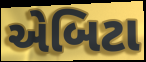
એબિટા